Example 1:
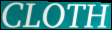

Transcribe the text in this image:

CLOTH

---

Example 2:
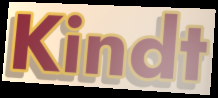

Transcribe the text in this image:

Kindt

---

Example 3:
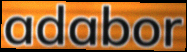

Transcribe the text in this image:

adabor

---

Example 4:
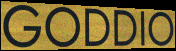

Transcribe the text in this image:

GODDIO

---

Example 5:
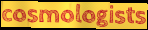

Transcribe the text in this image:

cosmologists